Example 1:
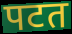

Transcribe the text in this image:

पटत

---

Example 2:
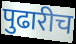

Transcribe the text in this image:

पुढारीच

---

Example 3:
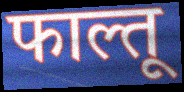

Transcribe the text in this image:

फाल्तू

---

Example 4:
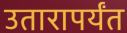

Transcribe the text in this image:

उतारापर्यंत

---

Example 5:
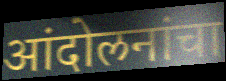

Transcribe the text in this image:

आंदोलनांचा